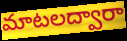
మాటలద్వారా